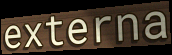
externa